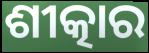
ଶୀତ୍କାର